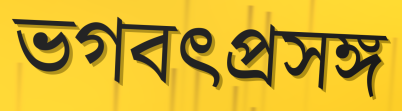
ভগবৎপ্রসঙ্গ